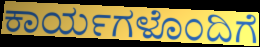
ಕಾರ್ಯಗಳೊಂದಿಗೆ